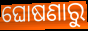
ଘୋଷଣାରୁ